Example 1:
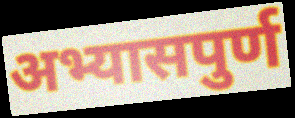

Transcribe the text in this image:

अभ्यासपुर्ण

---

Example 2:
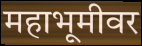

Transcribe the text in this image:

महाभूमीवर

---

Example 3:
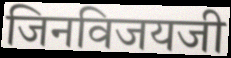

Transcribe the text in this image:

जिनविजयजी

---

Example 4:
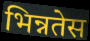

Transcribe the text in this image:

भिन्नतेस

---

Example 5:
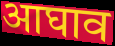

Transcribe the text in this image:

आघाव